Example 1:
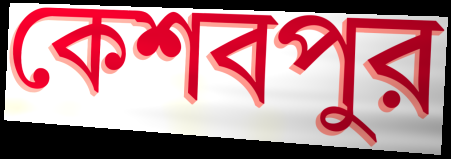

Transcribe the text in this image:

কেশবপুর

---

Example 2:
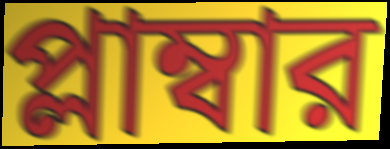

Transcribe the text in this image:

প্লাম্বার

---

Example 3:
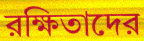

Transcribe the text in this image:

রক্ষিতাদের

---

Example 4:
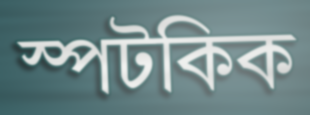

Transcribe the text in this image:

স্পটকিক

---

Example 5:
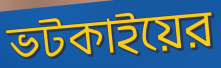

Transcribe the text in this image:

ভটকাইয়ের